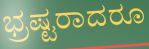
ಭ್ರಷ್ಟರಾದರೂ